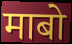
माबो